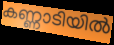
കണ്ണാടിയിൽ